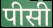
पीसी